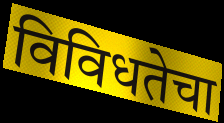
विविधतेचा